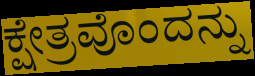
ಕ್ಷೇತ್ರವೊಂದನ್ನು